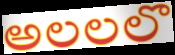
అలలలొ